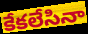
కేకలేసినా